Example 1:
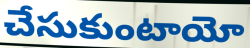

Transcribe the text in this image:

చేసుకుంటాయో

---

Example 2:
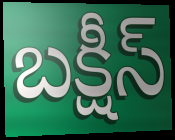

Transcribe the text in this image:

బక్షీస్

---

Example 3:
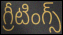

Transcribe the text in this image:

గ్రీటింగ్స్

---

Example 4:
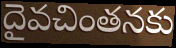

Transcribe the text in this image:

దైవచింతనకు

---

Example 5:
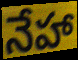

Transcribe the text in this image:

నేహా